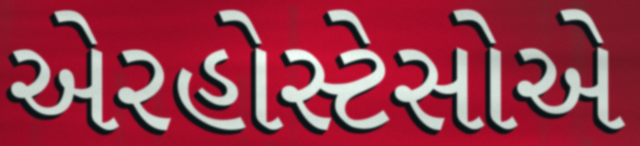
એરહોસ્ટેસોએ